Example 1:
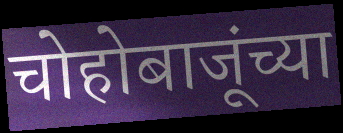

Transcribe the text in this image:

चोहोबाजूंच्या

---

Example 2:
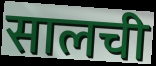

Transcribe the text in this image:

सालची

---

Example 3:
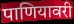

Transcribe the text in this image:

पाणियावरी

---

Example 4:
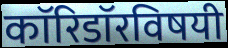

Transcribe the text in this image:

कॉरिडॉरविषयी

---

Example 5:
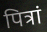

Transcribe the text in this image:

पित्रां